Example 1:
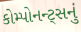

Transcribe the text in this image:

કોમ્પોનન્ટ્સનું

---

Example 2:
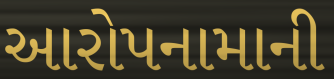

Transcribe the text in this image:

આરોપનામાની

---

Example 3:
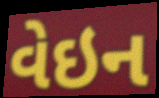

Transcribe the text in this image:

વેઇન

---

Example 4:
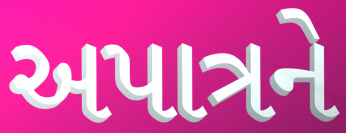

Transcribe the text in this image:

અપાત્રને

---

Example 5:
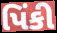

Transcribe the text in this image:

પિંકી